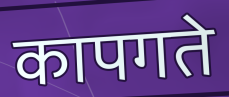
कापगते